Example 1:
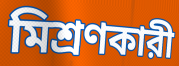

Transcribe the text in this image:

মিশ্রণকারী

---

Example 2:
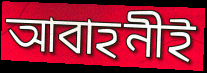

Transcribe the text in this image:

আবাহনীই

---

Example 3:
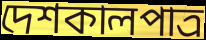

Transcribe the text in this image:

দেশকালপাত্র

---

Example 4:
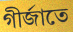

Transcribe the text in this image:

গীর্জাতে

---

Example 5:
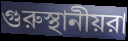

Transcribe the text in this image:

গুরুস্থানীয়রা